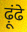
ढ़ूंढे